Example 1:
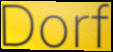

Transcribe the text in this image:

Dorf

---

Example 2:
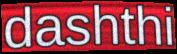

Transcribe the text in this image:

dashthi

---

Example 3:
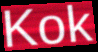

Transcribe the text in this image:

Kok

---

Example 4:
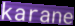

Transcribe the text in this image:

karane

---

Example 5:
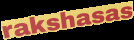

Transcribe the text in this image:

rakshasas